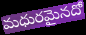
మధురమైనదో